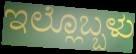
ಇಲ್ಲೊಬ್ಬಳು